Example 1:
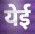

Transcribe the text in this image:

येई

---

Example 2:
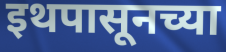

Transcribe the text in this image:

इथपासूनच्या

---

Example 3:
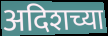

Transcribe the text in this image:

अदिशच्या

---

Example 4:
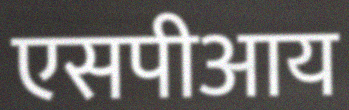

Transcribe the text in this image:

एसपीआय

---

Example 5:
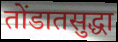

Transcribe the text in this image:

तोंडातसुद्धा